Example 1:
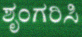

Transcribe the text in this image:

ಶೃಂಗರಿಸಿ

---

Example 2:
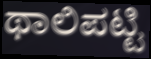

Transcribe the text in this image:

ಥಾಲಿಪಟ್ಟಿ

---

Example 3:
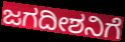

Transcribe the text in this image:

ಜಗದೀಶನಿಗೆ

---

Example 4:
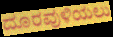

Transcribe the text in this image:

ದೂರವುಳಿಯಲು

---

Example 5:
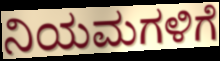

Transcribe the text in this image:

ನಿಯಮಗಳಿಗೆ